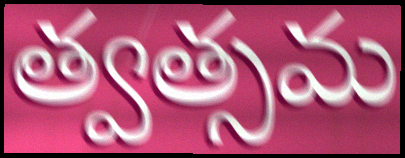
త్వత్సమ